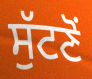
ਸੁੱਟਣੋਂ